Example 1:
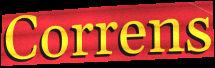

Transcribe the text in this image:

Correns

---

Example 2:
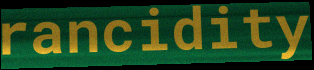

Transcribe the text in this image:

rancidity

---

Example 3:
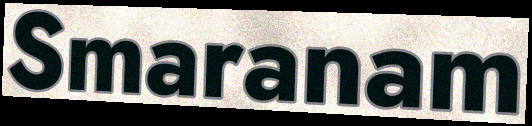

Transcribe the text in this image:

Smaranam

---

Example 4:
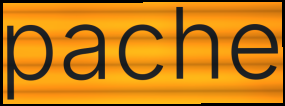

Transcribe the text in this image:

pache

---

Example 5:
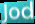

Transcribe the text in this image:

Jod